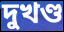
দুখণ্ড